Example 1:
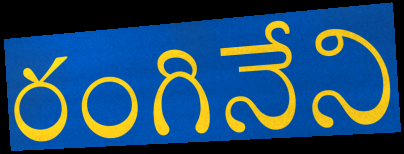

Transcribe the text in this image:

రంగినేని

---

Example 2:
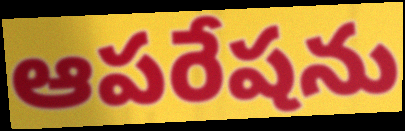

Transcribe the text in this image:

ఆపరేషను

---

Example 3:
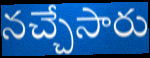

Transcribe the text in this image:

నచ్చేసారు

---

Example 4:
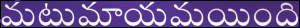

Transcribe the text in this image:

మటుమాయమయింది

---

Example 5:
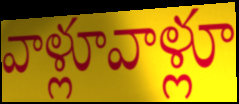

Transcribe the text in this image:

వాళ్లూవాళ్లూ